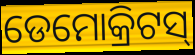
ଡେମୋକ୍ରିଟସ୍